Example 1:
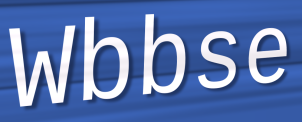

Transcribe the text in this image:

Wbbse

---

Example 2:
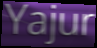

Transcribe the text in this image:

Yajur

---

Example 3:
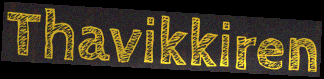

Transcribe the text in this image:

Thavikkiren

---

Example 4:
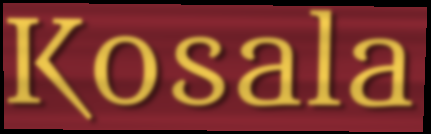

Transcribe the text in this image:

Kosala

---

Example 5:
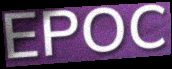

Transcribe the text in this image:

EPOC